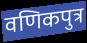
वणिकपुत्र